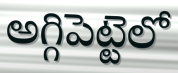
అగ్గిపెట్టెలో